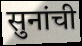
सुनांची